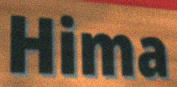
Hima